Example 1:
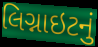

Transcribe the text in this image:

લિગ્નાઇટનું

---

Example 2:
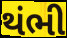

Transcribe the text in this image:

થંભી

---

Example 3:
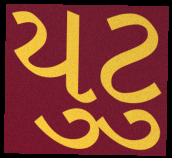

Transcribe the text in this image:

યુટુ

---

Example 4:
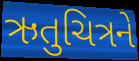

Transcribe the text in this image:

ઋતુચિત્રને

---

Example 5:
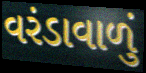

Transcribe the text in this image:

વરંડાવાળું